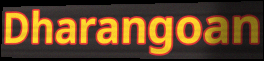
Dharangoan